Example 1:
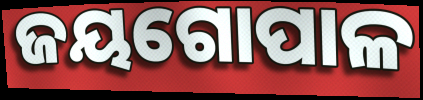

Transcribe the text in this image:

ଜୟଗୋପାଳ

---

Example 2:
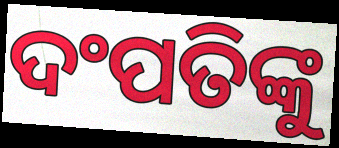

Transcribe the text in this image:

ଦଂପତିଙ୍କୁ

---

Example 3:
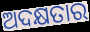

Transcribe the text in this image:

ଅଦକ୍ଷତାର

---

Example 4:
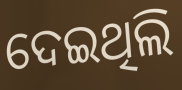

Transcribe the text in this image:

ଦେଇଥିଲି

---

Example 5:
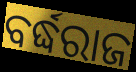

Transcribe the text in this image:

ବର୍ଦ୍ଧରାଜ